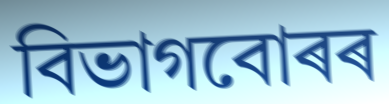
বিভাগবোৰৰ